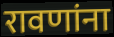
रावणांना